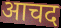
आचद